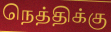
நெத்திக்கு